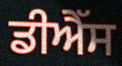
ਡੀਐੱਸ